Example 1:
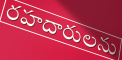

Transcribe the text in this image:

రహదారులను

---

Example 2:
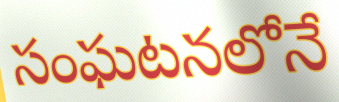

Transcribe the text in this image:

సంఘటనలోనే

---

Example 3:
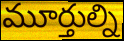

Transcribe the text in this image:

మూర్తుల్ని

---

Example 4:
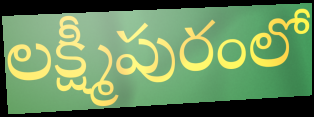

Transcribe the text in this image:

లక్ష్మీపురంలో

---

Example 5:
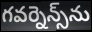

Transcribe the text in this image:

గవర్నెన్స్‌ను